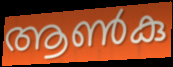
ആൺകു